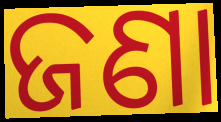
ଜଣା